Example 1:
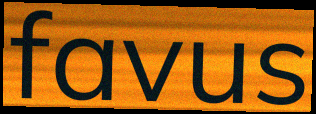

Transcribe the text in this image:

favus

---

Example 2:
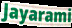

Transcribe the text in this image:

Jayarami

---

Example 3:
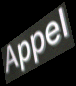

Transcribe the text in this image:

Appel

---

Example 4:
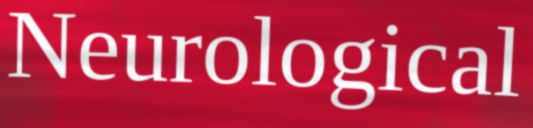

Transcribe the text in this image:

Neurological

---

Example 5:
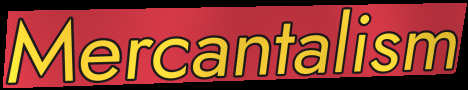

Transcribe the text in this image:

Mercantalism